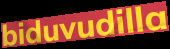
biduvudilla